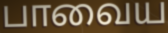
பாவைய